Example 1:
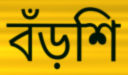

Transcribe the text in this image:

বঁড়শি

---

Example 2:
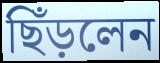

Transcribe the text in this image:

ছিঁড়লেন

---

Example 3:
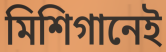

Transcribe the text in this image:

মিশিগানেই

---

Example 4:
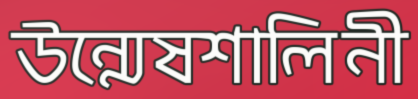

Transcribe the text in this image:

উন্মেষশালিনী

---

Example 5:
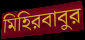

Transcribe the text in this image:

মিহিরবাবুর